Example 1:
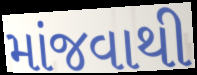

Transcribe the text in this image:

માંજવાથી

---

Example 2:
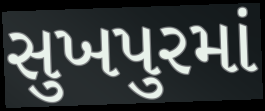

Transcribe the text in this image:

સુખપુરમાં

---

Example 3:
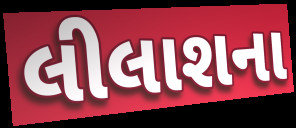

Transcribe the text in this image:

લીલાશના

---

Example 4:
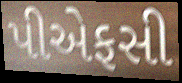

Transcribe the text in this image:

પીએફસી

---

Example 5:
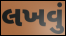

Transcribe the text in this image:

લખવું